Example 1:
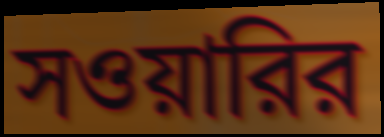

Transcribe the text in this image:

সওয়ারির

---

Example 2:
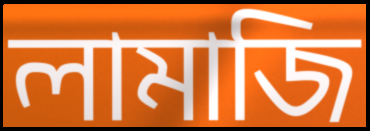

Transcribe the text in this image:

লামাজি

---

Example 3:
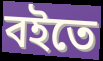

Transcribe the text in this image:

বইতে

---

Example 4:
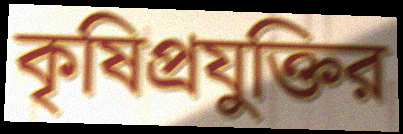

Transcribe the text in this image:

কৃষিপ্রযুক্তির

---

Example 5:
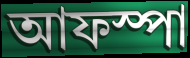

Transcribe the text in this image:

আফস্পা